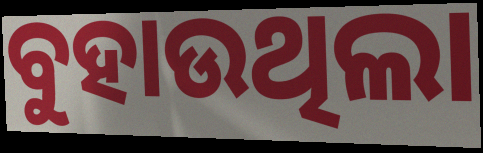
ବୁହାଉଥିଲା